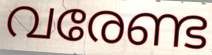
വരേണ്ട